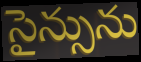
సైన్సును